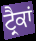
ਟ੍ਰੈਕਾਂ